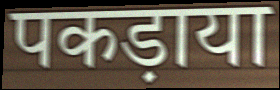
पकड़ाया